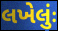
લખેલુંઃ